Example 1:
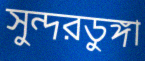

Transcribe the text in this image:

সুন্দরডুঙ্গা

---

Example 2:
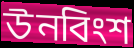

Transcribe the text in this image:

উনবিংশ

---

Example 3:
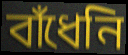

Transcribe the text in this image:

বাঁধেনি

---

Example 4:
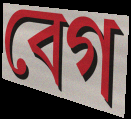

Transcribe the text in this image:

বেগ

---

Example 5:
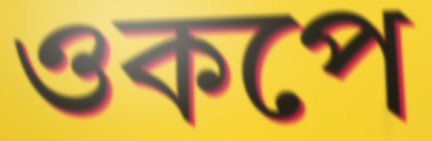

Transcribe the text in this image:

ওকপে